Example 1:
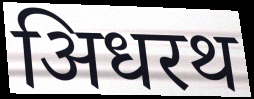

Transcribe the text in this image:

अिधरथ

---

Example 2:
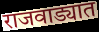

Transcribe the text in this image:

राजवाड्यात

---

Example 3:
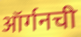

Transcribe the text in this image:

ऑर्गनची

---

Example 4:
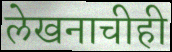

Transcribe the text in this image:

लेखनाचीही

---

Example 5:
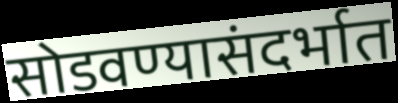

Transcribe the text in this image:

सोडवण्यासंदर्भात